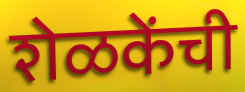
शेळकेंची